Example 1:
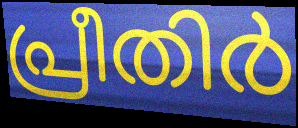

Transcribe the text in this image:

പ്രീതിർ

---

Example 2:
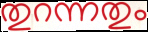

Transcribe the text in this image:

തുറന്നതും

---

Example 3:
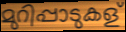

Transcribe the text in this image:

മുറിപ്പാടുകള്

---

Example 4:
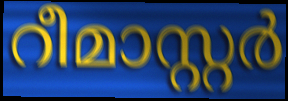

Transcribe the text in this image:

റീമാസ്റ്റർ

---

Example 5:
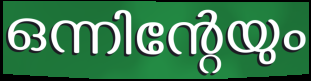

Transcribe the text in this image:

ഒന്നിന്റേയും